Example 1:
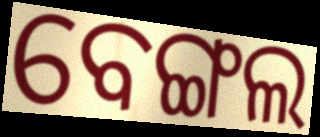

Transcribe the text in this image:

ବେଙ୍ଗଲ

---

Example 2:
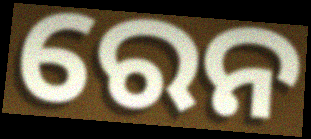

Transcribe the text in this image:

ରେନ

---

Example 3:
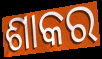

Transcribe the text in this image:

ଶାକର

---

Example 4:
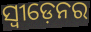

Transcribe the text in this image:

ସ୍ଵୀଡ଼େନର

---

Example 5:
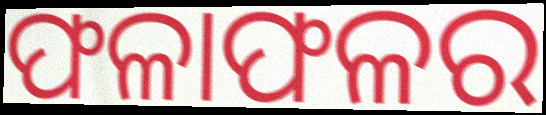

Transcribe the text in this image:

ଫଳାଫଳର